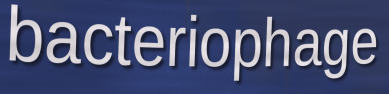
bacteriophage